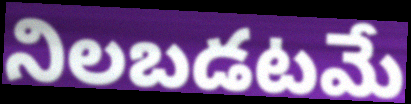
నిలబడటమే